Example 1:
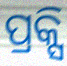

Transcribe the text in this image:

ପ୍ରକ୍ସି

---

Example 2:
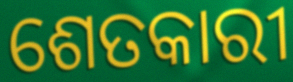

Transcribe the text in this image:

ଶେତକାରୀ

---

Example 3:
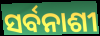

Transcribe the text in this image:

ସର୍ବନାଶୀ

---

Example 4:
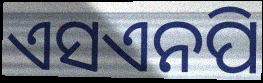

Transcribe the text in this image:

ଏସଏନପି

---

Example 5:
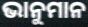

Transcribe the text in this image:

ଭାନୁମାନ